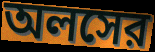
অলসের